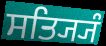
ਸਤ੍ਯ੍ਯਿੰ